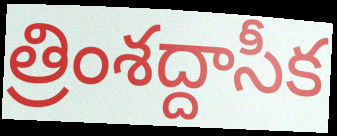
త్రింశద్దాసీక